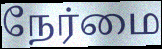
நேர்மை